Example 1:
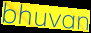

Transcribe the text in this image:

bhuvan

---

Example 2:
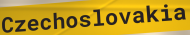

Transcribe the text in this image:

Czechoslovakia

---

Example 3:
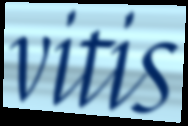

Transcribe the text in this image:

vitis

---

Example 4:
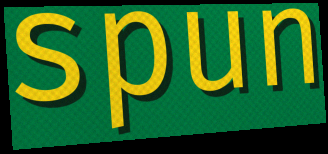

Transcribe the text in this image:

spun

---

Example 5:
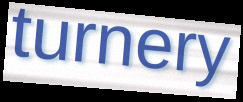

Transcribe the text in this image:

turnery